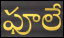
ఫూలే